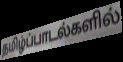
தமிழ்ப்பாடல்களில்